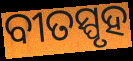
ବୀତସ୍ପୃହ